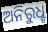
ଅନିରୁଧ୍ହ